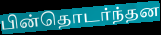
பின்தொடர்ந்தன